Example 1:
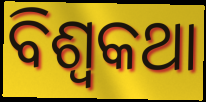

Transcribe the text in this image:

ବିଶ୍ୱକଥା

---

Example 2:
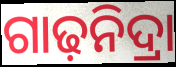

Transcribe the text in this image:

ଗାଢ଼ନିଦ୍ରା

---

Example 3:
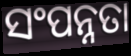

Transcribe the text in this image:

ସଂପନ୍ନତା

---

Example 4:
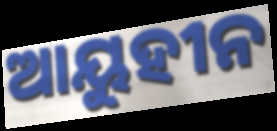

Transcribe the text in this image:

ଆୟୁହୀନ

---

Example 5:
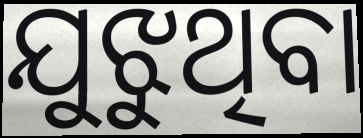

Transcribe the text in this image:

ଯୁଝୁଥିବା